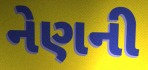
નેણની